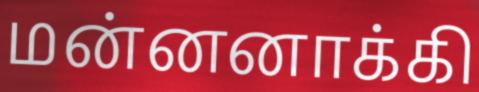
மன்னனாக்கி